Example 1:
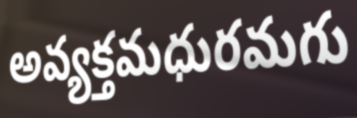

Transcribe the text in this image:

అవ్యక్తమధురమగు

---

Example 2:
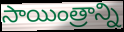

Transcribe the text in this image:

సాయింత్రాన్ని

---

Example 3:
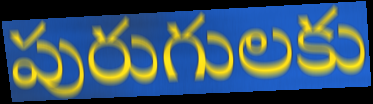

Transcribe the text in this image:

పురుగులకు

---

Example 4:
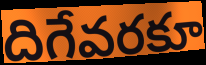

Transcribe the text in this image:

దిగేవరకూ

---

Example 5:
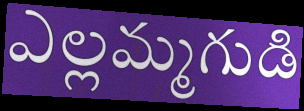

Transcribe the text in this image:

ఎల్లమ్మగుడి